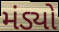
મંડ્યો